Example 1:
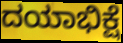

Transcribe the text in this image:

ದಯಾಭಿಕ್ಷೆ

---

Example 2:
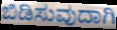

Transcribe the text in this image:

ಬಿಡಿಸುವುದಾಗಿ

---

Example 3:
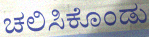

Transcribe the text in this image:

ಚಲಿಸಿಕೊಂಡು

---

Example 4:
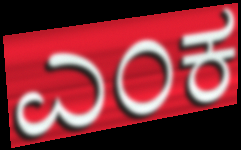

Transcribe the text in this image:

ಎಂಕ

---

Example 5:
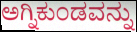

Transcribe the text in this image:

ಅಗ್ನಿಕುಂಡವನ್ನು